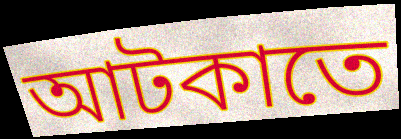
আটকাতে